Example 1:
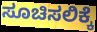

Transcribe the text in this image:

ಸೂಚಿಸಲಿಕ್ಕೆ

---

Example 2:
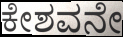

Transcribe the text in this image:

ಕೇಶವನೇ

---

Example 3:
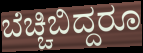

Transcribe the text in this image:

ಬೆಚ್ಚಿಬಿದ್ದರೂ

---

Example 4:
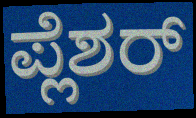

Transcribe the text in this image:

ಪ್ಲೆಶರ್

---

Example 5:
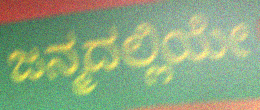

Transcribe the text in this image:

ಜನ್ಮದಲ್ಲಿಯೇ